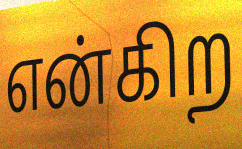
என்கிற